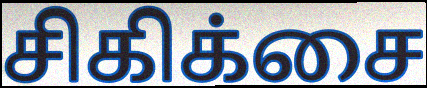
சிகிக்சை